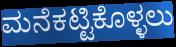
ಮನೆಕಟ್ಟಿಕೊಳ್ಳಲು